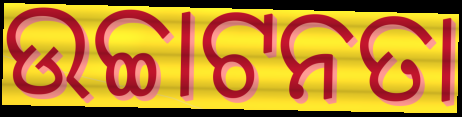
ଉଚ୍ଚାଟନତା